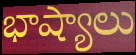
భాష్యాలు